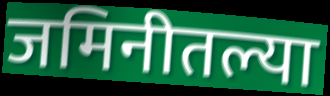
जमिनीतल्या